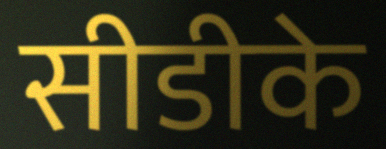
सीडीके